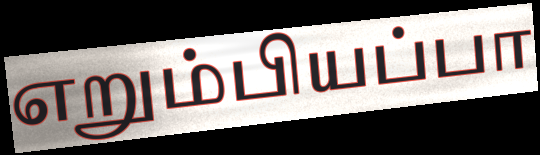
எறும்பியப்பா